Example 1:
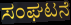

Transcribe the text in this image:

ಸಂಘಟನೆ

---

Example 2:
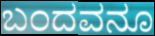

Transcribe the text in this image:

ಬಂದವನೂ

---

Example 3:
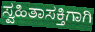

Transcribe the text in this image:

ಸ್ವಹಿತಾಸಕ್ತಿಗಾಗಿ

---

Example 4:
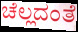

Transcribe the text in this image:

ಚೆಲ್ಲದಂತೆ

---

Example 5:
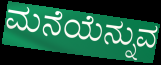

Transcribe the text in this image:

ಮನೆಯೆನ್ನುವ